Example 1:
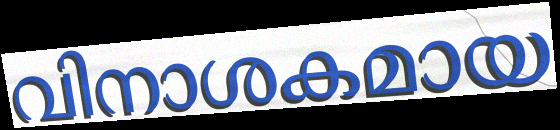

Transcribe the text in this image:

വിനാശകമായ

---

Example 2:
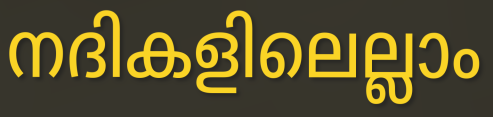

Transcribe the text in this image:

നദികളിലെല്ലാം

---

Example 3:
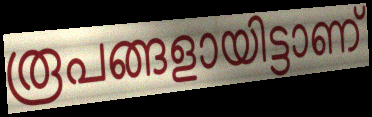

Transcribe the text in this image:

രൂപങ്ങളായിട്ടാണ്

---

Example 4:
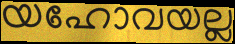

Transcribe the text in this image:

യഹോവയല്ല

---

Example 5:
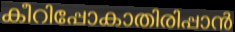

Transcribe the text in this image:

കീറിപ്പോകാതിരിപ്പാൻ